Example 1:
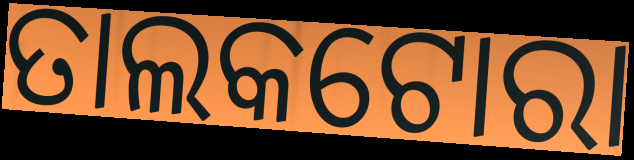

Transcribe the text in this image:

ତାଲକଟୋରା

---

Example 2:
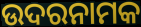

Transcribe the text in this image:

ଉଦରନାମକ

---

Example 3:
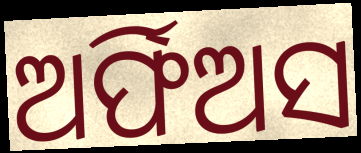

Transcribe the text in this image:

ଅର୍ଫିଅସ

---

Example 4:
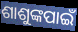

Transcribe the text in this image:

ଶାଶୁଙ୍କପାଇଁ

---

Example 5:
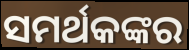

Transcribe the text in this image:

ସମର୍ଥକଙ୍କର